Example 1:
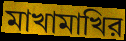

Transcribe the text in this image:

মাখামাখির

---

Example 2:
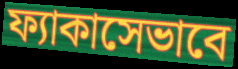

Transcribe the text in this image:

ফ্যাকাসেভাবে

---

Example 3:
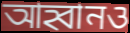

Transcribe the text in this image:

আহ্বানও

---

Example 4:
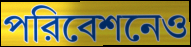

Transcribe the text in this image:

পরিবেশনেও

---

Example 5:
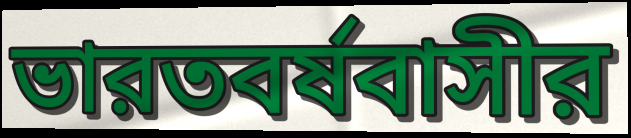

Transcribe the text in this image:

ভারতবর্ষবাসীর